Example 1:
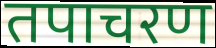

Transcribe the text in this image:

तपाचरण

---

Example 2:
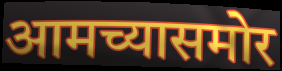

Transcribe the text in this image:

आमच्यासमोर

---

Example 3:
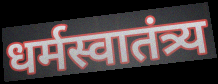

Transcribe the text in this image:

धर्मस्वातंत्र्य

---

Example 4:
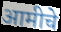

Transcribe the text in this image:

आमीचे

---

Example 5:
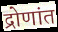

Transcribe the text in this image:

द्रोणांत